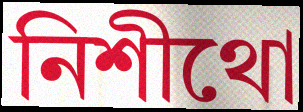
নিশীথো